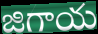
జిగాయ